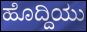
ಹೊದ್ದಿಯು